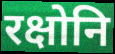
रक्षोनि